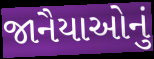
જાનૈયાઓનું